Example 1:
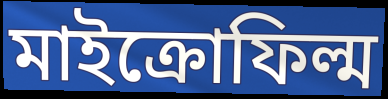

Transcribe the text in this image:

মাইক্রোফিল্ম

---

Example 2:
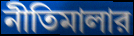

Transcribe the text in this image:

নীতিমালার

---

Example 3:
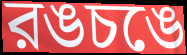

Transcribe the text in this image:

রঙচঙে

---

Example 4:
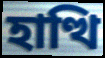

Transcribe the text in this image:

হাত্থি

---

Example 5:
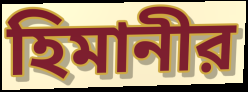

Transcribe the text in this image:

হিমানীর